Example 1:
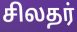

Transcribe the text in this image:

சிலதர்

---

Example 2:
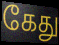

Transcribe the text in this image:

கேது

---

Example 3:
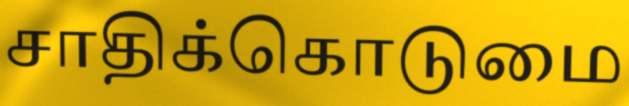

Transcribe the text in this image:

சாதிக்கொடுமை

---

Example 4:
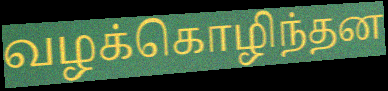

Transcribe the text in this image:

வழக்கொழிந்தன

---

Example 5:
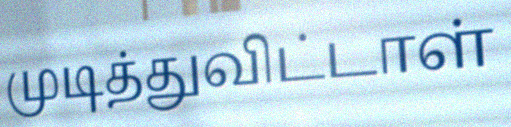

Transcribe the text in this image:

முடித்துவிட்டாள்